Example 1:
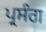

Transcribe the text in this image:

ਪ੍ਰਸੰਗ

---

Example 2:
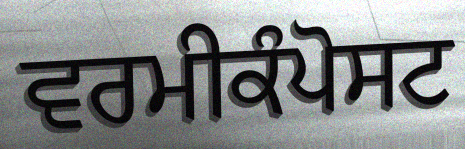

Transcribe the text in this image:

ਵਰਮੀਕੰਪੋਸਟ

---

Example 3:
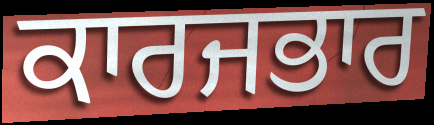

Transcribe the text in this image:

ਕਾਰਜਭਾਰ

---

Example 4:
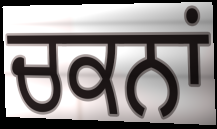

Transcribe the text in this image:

ਚਕਨਾਂ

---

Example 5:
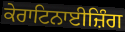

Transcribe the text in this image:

ਕੇਰਾਟਿਨਾਈਜ਼ਿੰਗ